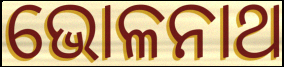
ଭୋଳନାଥ